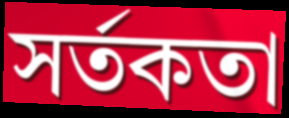
সর্তকতা